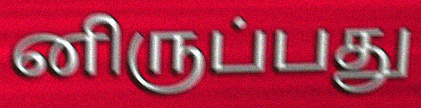
னிருப்பது